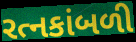
રત્નકાંબળી